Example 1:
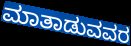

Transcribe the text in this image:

ಮಾತಾಡುವವರ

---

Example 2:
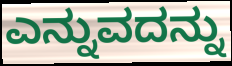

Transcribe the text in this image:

ಎನ್ನುವದನ್ನು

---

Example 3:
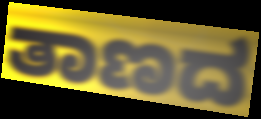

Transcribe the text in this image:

ತಾಣದ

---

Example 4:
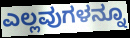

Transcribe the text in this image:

ಎಲ್ಲವುಗಳನ್ನೂ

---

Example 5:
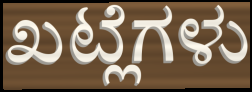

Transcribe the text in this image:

ಖಟ್ಲೆಗಳು